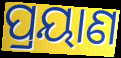
ପ୍ରୟାଣ